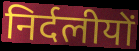
निर्दलीयों